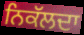
ਨਿਕੱਲਦਾ